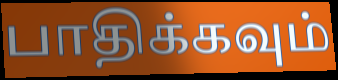
பாதிக்கவும்